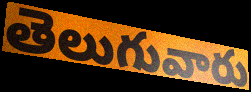
తెలుగువారు